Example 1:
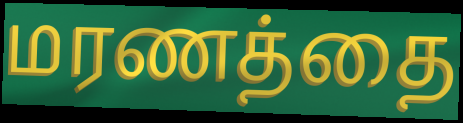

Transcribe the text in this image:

மரணத்தை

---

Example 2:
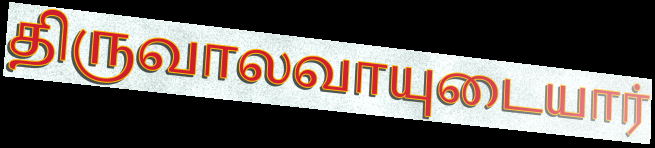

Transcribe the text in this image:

திருவாலவாயுடையார்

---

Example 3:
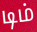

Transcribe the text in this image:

டிம்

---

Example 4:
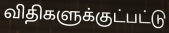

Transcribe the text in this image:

விதிகளுக்குட்பட்டு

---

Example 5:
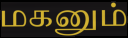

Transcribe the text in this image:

மகனும்